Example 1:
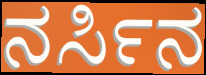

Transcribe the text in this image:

ನರ್ಸಿನ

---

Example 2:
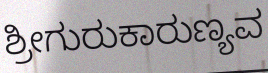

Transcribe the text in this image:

ಶ್ರೀಗುರುಕಾರುಣ್ಯವ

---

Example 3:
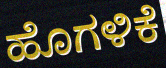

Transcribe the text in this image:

ಹೊಗಳಿಕೆ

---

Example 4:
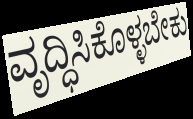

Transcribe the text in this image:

ವೃದ್ಧಿಸಿಕೊಳ್ಳಬೇಕು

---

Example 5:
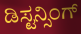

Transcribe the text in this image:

ಡಿಸ್ಟನ್ಸಿಂಗ್